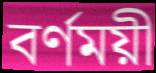
বর্ণময়ী